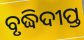
ବୃଦ୍ଧିଦୀପ୍ତ